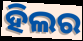
ହିଲର